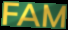
FAM